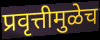
प्रवृत्तीमुळेच